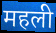
महली